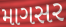
માગસર